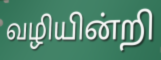
வழியின்றி